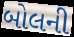
બોલની